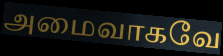
அமைவாகவே